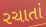
રચાતાં